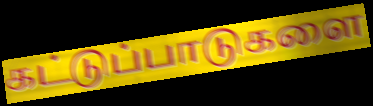
கட்டுப்பாடுகளை